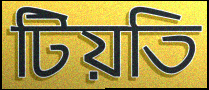
টিয়তি